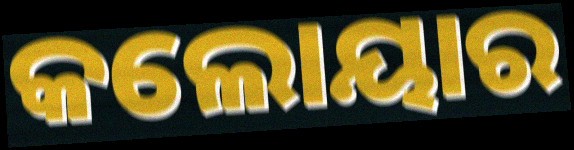
କଲୋୟାର